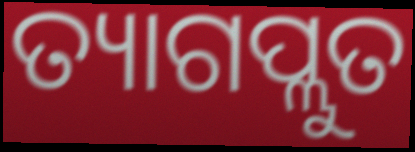
ତ୍ୟାଗପ୍ଲୁତ